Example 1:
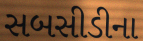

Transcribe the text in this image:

સબસીડીના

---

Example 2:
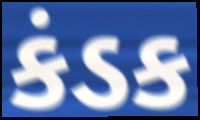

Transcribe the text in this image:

કંડક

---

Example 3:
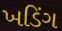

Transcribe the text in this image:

ખડિંગ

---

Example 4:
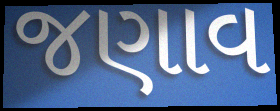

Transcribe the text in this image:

જણાવ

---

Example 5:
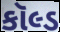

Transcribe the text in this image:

કૉલ્ડ